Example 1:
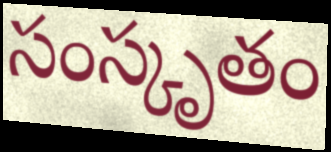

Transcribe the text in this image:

సంస్కృతం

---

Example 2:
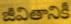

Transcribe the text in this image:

జీవితానికీ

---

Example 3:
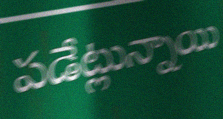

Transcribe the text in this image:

పడేట్లున్నాయి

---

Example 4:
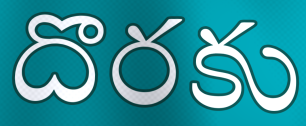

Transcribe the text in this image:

దొరకు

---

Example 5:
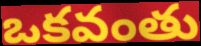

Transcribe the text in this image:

ఒకవంతు